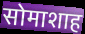
सोमाशाह